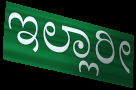
ಇಲ್ಲಾರೀ